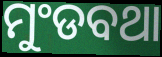
ମୁଂଡବଥା